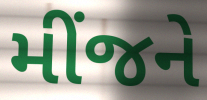
મીંજને